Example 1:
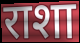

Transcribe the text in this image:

राशा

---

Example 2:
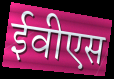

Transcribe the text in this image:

ईवीएस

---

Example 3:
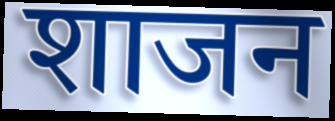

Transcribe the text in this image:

शाजन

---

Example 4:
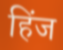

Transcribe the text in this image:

हिंज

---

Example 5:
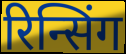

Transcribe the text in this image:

रिन्सिंग